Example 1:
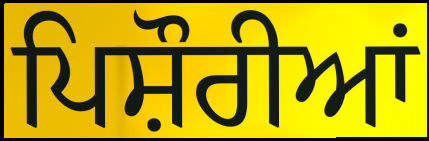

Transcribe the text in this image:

ਪਿਸ਼ੌਰੀਆਂ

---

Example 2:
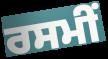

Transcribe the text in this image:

ਰਸਮੀਂ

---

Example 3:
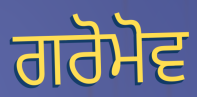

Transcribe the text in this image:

ਗਰੋਮੋਵ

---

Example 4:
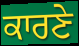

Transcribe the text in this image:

ਕਾਰਣੇ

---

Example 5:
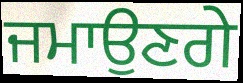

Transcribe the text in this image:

ਜਮਾਉਣਗੇ